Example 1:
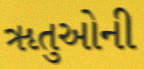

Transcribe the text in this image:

ૠતુઓની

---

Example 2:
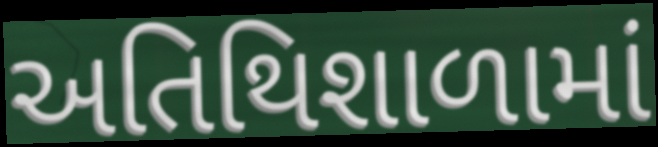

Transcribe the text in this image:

અતિથિશાળામાં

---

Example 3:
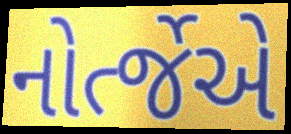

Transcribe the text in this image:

નોર્ત્જેએ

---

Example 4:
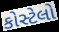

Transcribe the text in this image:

કોસ્ટેલો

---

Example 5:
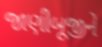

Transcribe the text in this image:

જાણીબૂજીને